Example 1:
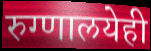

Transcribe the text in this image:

रुग्णालयेही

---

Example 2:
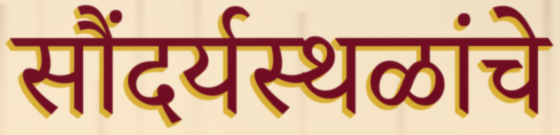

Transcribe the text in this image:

सौंदर्यस्थळांचे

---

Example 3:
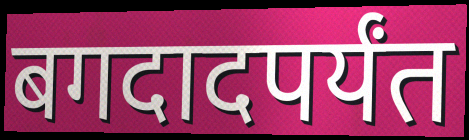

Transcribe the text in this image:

बगदादपर्यंत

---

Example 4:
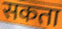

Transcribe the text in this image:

सकता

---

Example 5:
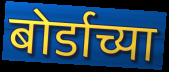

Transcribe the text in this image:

बोर्डाच्या